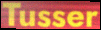
Tusser